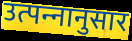
उत्पन्नानुसार